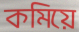
কমিয়ে